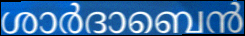
ശാർദാബെൻ